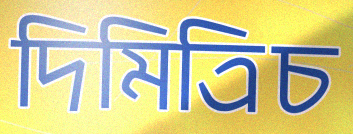
দিমিত্রিচ